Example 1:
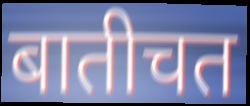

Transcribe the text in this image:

बातीचत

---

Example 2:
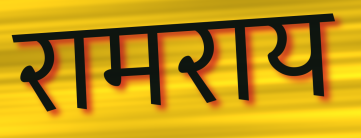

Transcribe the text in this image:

रामराय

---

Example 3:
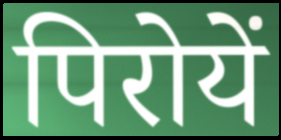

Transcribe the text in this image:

पिरोयें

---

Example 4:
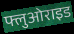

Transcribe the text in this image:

फ्लुओराइड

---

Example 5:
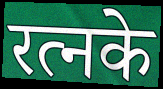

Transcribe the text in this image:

रत्नके